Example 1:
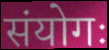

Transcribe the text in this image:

संयोगः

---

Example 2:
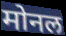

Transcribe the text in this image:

मोनल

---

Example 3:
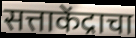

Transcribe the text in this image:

सत्ताकेंद्राचा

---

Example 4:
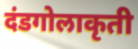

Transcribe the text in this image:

दंडगोलाकृती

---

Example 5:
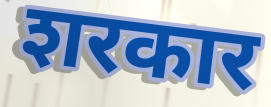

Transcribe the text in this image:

शरकार